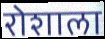
रोशाला